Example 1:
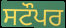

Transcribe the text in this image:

ਸਟੌਪਰ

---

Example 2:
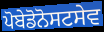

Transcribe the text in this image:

ਪੋਬੇਡੋਨੋਸਟਸੇਵ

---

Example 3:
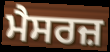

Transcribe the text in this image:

ਮੈਸਰਜ਼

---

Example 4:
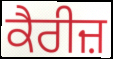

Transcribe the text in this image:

ਕੈਰੀਜ਼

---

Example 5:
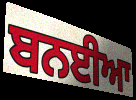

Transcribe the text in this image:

ਬਨਈਆ